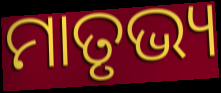
ମାତୃଭ୍ୟ